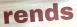
rends